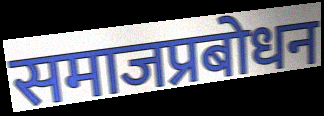
समाजप्रबोधन